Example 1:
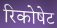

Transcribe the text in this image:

रिकोषेट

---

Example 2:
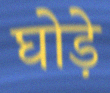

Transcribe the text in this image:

घोड़े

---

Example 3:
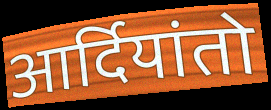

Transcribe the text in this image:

आर्दियांतो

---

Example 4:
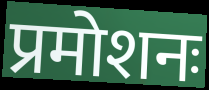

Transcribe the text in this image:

प्रमोशनः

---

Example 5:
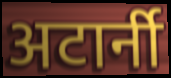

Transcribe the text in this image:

अटार्नी